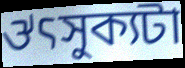
ঔৎসুক্যটা